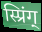
स्प्रिंग्